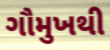
ગૌમુખથી